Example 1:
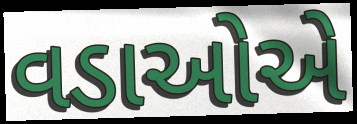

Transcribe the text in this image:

વડાઓએ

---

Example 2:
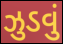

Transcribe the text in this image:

ઝુડવું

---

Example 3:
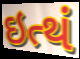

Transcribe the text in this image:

ઇત્થં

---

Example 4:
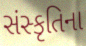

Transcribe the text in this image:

સંસ્કૃતિના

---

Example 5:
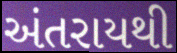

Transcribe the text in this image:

અંતરાયથી